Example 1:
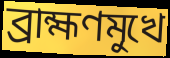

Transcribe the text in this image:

ব্রাহ্মণমুখে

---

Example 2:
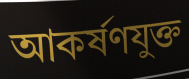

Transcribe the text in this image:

আকর্ষণযুক্ত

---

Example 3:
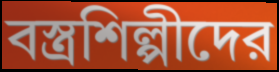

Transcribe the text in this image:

বস্ত্রশিল্পীদের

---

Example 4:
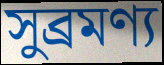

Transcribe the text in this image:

সুব্রমণ্য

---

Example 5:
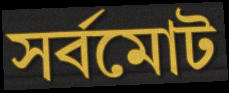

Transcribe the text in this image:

সর্বমোট